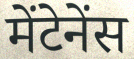
मेंटेनेंस